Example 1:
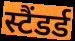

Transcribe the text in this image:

स्टैंडर्ड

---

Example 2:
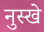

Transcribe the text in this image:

नुस्खे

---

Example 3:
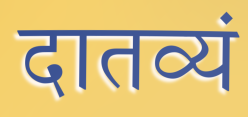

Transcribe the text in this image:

दातव्यं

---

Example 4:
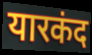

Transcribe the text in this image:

यारकंद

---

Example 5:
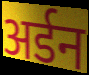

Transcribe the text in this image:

अर्डन